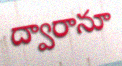
ద్వారానూ